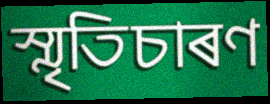
স্মৃতিচাৰণ